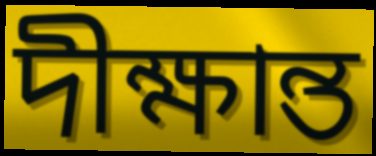
দীক্ষান্ত